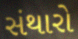
સંથારો